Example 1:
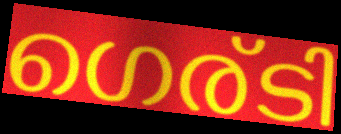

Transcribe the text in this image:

ഗെര്ടി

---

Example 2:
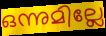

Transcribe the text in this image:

ഒന്നുമില്ലേ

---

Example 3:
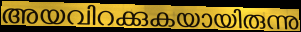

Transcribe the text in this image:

അയവിറക്കുകയായിരുന്നു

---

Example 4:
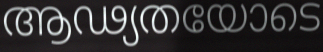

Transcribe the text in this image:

ആഢ്യതയോടെ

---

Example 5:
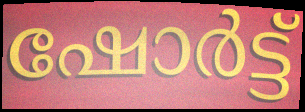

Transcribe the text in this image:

ഷോർട്ട്